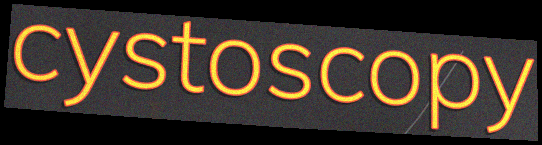
cystoscopy